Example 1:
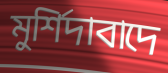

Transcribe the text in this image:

মুর্শিদাবাদে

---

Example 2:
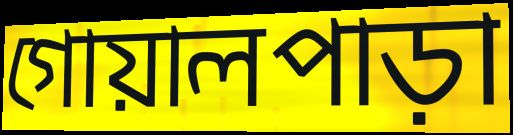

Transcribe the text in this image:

গোয়ালপাড়া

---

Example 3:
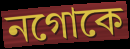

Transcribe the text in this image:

নগোকে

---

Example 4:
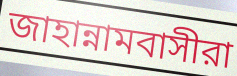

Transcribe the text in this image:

জাহান্নামবাসীরা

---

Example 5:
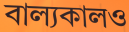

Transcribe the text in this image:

বাল্যকালও